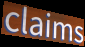
claims